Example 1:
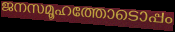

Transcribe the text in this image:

ജനസമൂഹത്തോടൊപ്പം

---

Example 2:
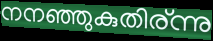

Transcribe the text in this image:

നനഞ്ഞുകുതിര്ന്നു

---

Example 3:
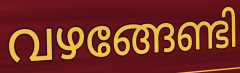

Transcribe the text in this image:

വഴങ്ങേണ്ടി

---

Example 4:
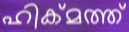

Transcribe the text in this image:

ഹിക്മത്ത്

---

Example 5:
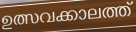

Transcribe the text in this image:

ഉത്സവക്കാലത്ത്